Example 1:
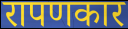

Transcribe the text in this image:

रापणकार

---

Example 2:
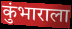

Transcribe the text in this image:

कुंभाराला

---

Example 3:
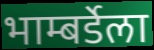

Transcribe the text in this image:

भाम्बर्डेला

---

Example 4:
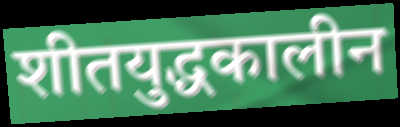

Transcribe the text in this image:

शीतयुद्धकालीन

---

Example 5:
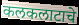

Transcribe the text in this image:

कलकलाटाचे